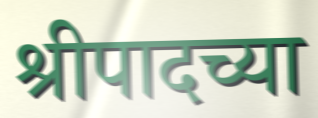
श्रीपादच्या